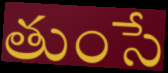
తుంసే